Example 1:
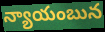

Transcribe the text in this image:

న్యాయంబున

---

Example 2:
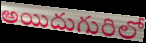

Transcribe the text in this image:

అయిదుగురిలో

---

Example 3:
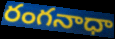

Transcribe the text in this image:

రంగనాధా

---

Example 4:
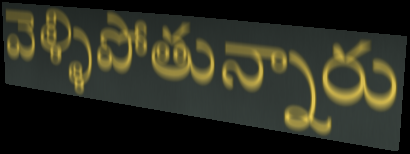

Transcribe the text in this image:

వెళ్ళిపోతున్నారు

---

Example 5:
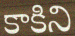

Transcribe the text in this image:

కాకిని